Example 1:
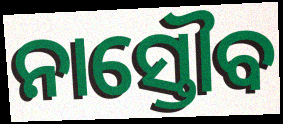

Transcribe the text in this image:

ନାସ୍ତୌବ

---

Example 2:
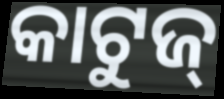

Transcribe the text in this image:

କାଟୁଜ୍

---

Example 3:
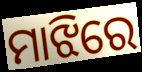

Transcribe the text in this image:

ମାଝିରେ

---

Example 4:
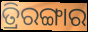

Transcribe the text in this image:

ତ୍ରିରଙ୍ଗାର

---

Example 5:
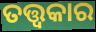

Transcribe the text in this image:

ତତ୍ତ୍ୱକାର